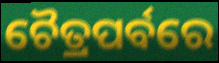
ଚୈତ୍ରପର୍ବରେ